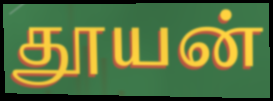
தூயன்